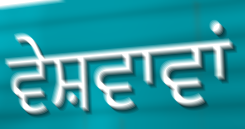
ਵੇਸ਼ਵਾਵਾਂ